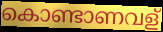
കൊണ്ടാണവള്